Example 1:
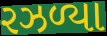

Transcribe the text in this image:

રઝળ્યા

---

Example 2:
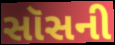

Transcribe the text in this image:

સૉસની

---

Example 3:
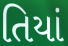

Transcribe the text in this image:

તિયાં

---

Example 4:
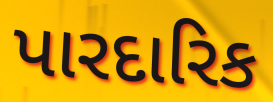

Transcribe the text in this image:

પારદારિક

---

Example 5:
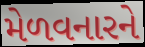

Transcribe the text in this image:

મેળવનારને